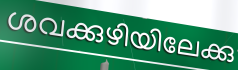
ശവക്കുഴിയിലേക്കു